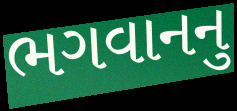
ભગવાનનુ